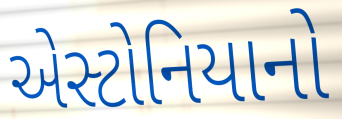
એસ્ટોનિયાનો